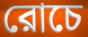
রোচে